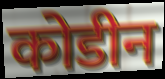
कोडीन